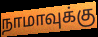
நாமாவுக்கு